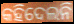
କହିଦେଲନି